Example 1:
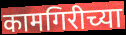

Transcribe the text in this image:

कामगिरीच्या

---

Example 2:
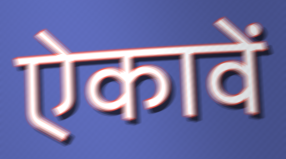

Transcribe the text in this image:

ऐकावें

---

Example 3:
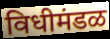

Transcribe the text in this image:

विधीमंडळ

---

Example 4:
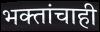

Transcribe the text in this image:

भक्तांचाही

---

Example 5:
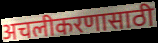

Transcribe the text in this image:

अचलीकरणासाठी